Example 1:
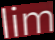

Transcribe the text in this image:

lim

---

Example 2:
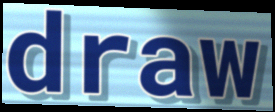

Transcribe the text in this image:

draw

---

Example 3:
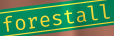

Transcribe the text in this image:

forestall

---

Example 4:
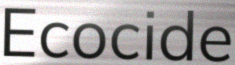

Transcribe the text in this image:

Ecocide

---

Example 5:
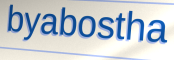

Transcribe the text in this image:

byabostha